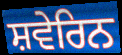
ਸ਼ਵੇਰਿਨ